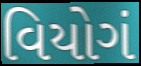
વિયોગં